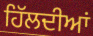
ਹਿੱਲਦੀਆਂ